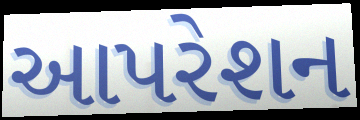
આપરેશન